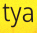
tya